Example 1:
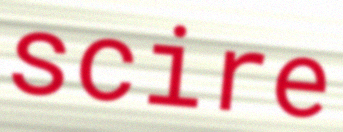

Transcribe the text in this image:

scire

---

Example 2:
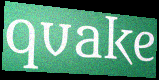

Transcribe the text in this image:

quake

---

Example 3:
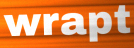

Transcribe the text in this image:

wrapt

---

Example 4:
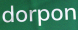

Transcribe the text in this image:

dorpon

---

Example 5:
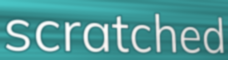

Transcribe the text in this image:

scratched